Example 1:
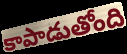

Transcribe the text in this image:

కాపాడుతోంది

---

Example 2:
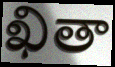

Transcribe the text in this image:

ఖితా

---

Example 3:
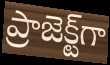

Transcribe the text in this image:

ప్రాజెక్ట్‌గా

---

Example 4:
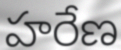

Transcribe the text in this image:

హరేణ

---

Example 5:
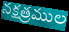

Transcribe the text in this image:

నక్షత్రముల